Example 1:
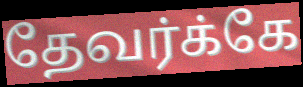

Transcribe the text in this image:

தேவர்க்கே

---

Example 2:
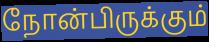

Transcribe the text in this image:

நோன்பிருக்கும்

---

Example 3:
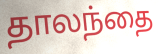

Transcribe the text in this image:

தாலந்தை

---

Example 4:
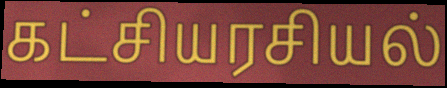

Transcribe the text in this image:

கட்சியரசியல்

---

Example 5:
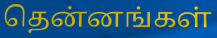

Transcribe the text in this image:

தென்னங்கள்